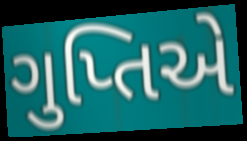
ગુપ્તિએ